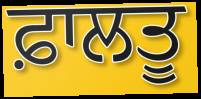
ਫ਼ਾਲਤੂ